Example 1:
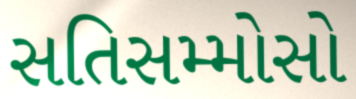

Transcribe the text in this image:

સતિસમ્મોસો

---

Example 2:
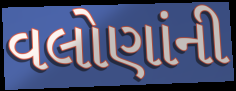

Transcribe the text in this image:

વલોણાંની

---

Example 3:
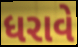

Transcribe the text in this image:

ધરાવે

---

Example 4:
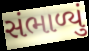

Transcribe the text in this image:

સંભાળ્યું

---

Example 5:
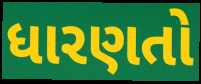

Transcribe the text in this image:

ધારણતો